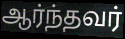
ஆர்ந்தவர்